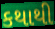
કથાથી